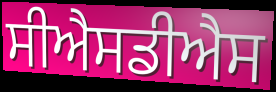
ਸੀਐਸਡੀਐਸ